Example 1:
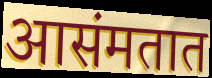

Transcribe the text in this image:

आसंमतात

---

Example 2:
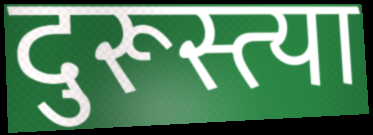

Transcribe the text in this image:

दुरूस्त्या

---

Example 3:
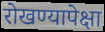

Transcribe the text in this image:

रोखण्यापेक्षा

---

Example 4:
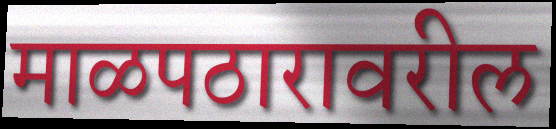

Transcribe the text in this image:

माळपठारावरील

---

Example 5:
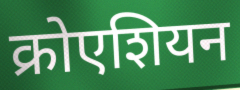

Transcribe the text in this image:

क्रोएशियन